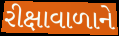
રીક્ષાવાળાને